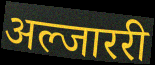
अल्जाररी